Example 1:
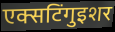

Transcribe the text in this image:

एक्सटिंगुइशर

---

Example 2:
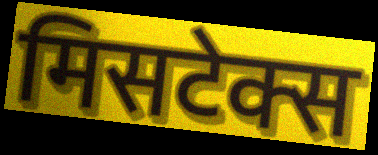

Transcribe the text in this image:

मिसटेक्स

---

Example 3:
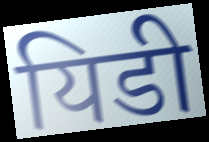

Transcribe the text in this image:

यिडी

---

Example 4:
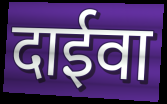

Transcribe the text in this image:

दाईवा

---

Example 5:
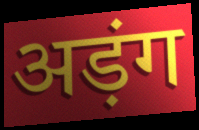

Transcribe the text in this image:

अड़ंग